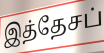
இத்தேசப்